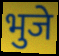
भुजे